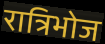
रात्रिभोज